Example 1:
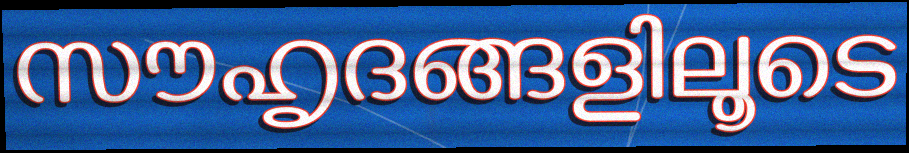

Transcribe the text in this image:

സൗഹൃദങ്ങളിലൂടെ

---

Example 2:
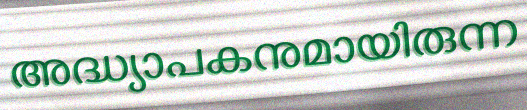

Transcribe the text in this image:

അദ്ധ്യാപകനുമായിരുന്ന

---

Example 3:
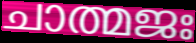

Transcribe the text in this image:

ചാത്മജഃ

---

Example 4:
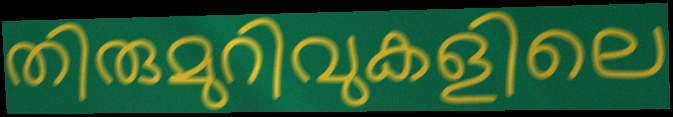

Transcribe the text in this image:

തിരുമുറിവുകളിലെ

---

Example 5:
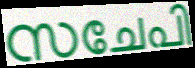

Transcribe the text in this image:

സചേപി